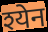
श्येन